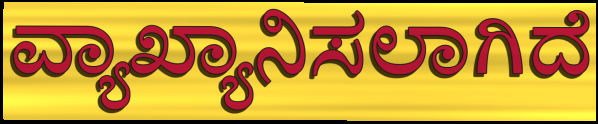
ವ್ಯಾಖ್ಯಾನಿಸಲಾಗಿದೆ